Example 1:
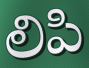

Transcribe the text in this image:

లిపి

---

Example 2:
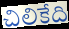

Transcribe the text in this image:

చిలికేది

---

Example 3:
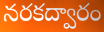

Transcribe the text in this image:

నరకద్వారం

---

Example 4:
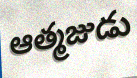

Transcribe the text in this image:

ఆత్మజుడు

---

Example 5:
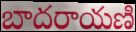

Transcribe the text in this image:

బాదరాయణి